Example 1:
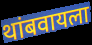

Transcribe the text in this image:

थांबवायला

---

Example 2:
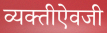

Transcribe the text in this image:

व्यक्तीऐवजी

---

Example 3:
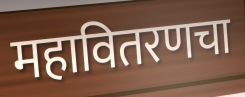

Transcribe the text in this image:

महावितरणचा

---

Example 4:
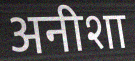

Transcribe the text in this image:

अनीशा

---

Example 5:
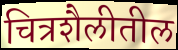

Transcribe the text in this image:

चित्रशैलीतील